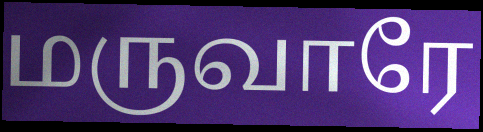
மருவாரே